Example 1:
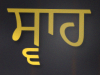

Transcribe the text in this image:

ਸ੍ਵਾਹ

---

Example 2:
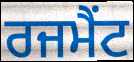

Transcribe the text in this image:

ਰਜਮੈਂਟ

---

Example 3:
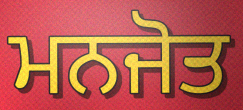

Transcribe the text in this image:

ਮਨਜੋਤ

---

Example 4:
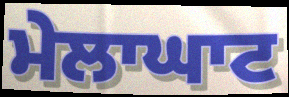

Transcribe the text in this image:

ਮੇਲਾਘਾਟ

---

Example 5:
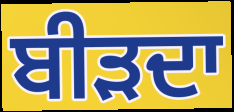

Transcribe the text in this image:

ਬੀੜਦਾ